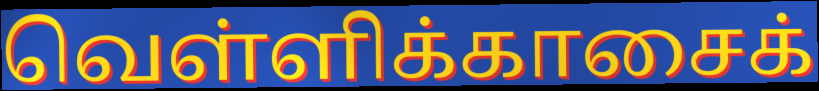
வெள்ளிக்காசைக்